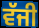
ਵੱਜੀ